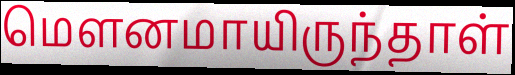
மௌனமாயிருந்தாள்